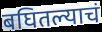
बघितल्याचं